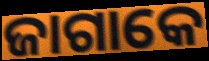
ଜାଗାକେ